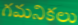
గమనికలు